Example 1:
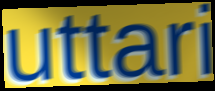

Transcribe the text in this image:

uttari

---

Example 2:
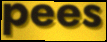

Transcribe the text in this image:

pees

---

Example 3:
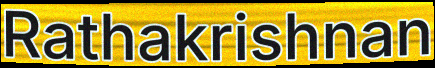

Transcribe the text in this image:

Rathakrishnan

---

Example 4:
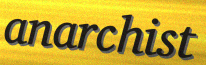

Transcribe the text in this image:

anarchist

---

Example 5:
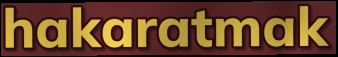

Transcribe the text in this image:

hakaratmak